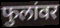
फुलांवर